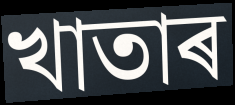
খাতাৰ